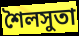
শৈলসুতা